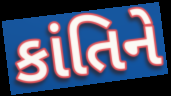
કાંતિને